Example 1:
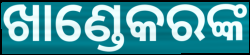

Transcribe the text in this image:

ଖାଣ୍ଡେକରଙ୍କ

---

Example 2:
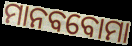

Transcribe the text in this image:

ମାନବବୋମା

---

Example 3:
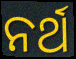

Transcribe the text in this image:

ନର୍ଥ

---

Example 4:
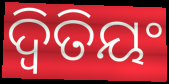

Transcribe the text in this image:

ଦ୍ୱିତିୟଂ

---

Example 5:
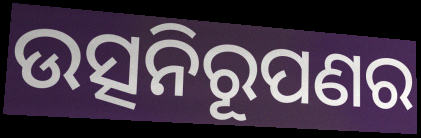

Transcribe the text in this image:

ଉତ୍ସନିରୂପଣର